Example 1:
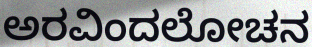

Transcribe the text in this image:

ಅರವಿಂದಲೋಚನ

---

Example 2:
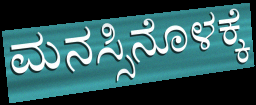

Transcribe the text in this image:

ಮನಸ್ಸಿನೊಳಕ್ಕೆ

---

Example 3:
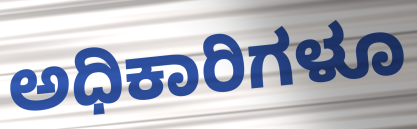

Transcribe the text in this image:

ಅಧಿಕಾರಿಗಳೂ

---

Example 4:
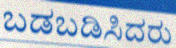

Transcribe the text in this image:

ಬಡಬಡಿಸಿದರು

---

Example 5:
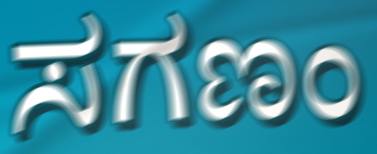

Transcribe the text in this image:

ಸಗಣಂ